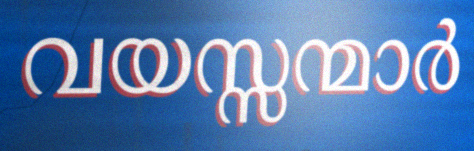
വയസ്സന്മാർ